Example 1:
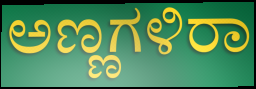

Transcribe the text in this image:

ಅಣ್ಣಗಳಿರಾ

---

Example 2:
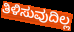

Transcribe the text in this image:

ತಿಳಿಸುವುದಿಲ್ಲ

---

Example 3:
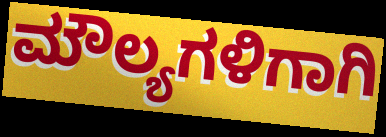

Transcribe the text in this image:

ಮೌಲ್ಯಗಳಿಗಾಗಿ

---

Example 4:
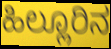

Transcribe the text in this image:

ಹಿಲ್ಲೂರಿನ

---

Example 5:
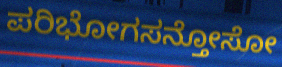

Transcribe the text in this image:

ಪರಿಭೋಗಸನ್ತೋಸೋ